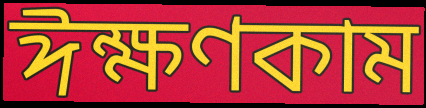
ঈক্ষণকাম